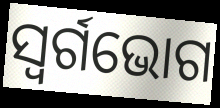
ସ୍ୱର୍ଗଭୋଗ